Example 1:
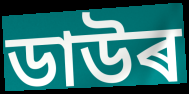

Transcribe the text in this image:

ডাউৰ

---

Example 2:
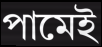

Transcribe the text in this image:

পামেই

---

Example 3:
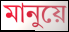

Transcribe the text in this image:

মানুয়ে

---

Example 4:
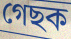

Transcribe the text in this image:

গেছক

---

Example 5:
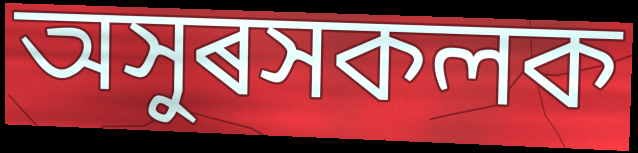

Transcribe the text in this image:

অসুৰসকলক